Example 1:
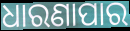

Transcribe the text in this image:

ଧାରଣାପାର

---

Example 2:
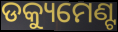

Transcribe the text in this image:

ଡକ୍ୟୁମେଣ୍ଟ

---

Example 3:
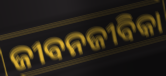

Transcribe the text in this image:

ଜୀବନଜୀବିକା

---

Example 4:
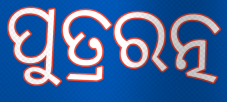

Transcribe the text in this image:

ପୁତ୍ରରତ୍ନ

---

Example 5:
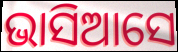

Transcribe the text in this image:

ଭାସିଆସେ